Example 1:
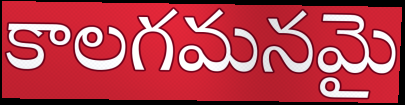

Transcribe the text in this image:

కాలగమనమై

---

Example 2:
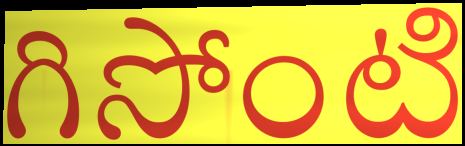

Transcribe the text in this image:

గిసోంటి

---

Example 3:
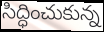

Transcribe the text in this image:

సిద్ధించుకున్న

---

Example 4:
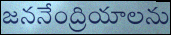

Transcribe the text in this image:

జననేంద్రియాలను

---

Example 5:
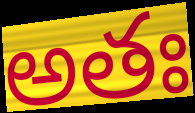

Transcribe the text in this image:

అతః